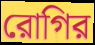
রোগির